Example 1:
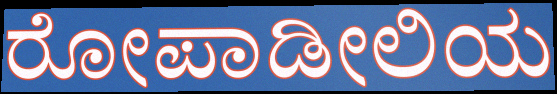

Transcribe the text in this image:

ರೋಪಾಡೀಲಿಯ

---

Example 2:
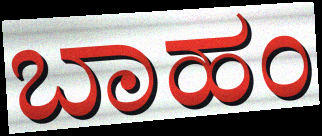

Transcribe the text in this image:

ಬಾಹಂ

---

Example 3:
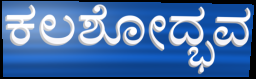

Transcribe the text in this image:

ಕಲಶೋದ್ಭವ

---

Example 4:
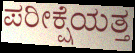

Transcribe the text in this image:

ಪರೀಕ್ಷೆಯತ್ತ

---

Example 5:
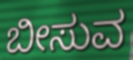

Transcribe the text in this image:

ಬೀಸುವ